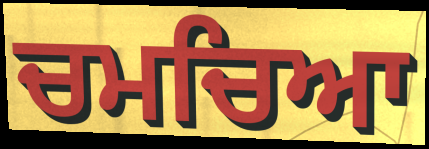
ਚਮਚਿਆ